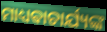
ମାଧ୍ୟଵାଚାର୍ଯ୍ୟଙ୍କ